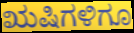
ಋಷಿಗಳಿಗೂ